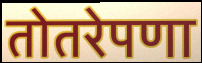
तोतरेपणा